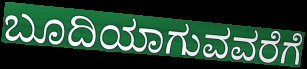
ಬೂದಿಯಾಗುವವರೆಗೆ